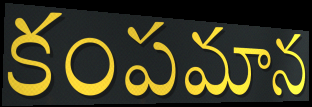
కంపమాన